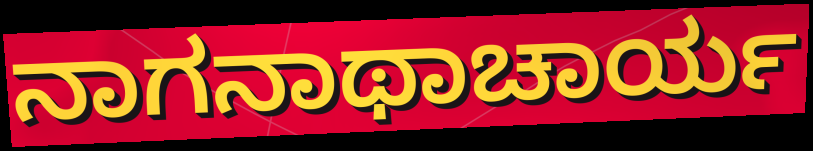
ನಾಗನಾಥಾಚಾರ್ಯ